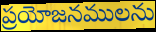
ప్రయోజనములను